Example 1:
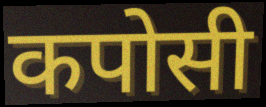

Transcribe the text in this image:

कपोसी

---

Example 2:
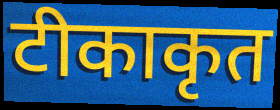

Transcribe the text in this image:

टीकाकृत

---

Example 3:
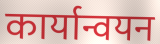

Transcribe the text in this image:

कार्यान्‍वयन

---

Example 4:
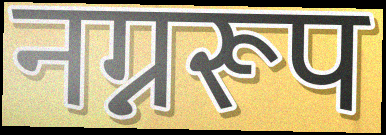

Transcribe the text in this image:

नग्नरूप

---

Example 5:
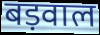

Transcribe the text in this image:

बड़वाल